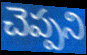
చెప్పని